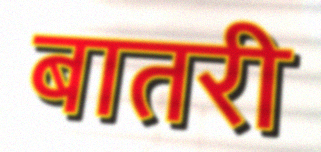
बातरी